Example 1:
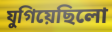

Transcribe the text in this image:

যুগিয়েছিলো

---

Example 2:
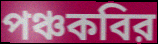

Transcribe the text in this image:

পঞ্চকবির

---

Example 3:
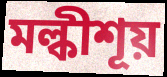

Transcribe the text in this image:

মল্কীশূয়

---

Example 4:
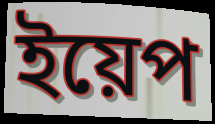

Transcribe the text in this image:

ইয়েপ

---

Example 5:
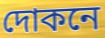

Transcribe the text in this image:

দোকনে